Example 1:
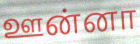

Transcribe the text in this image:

ஊன்னா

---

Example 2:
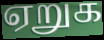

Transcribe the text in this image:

ஏறுக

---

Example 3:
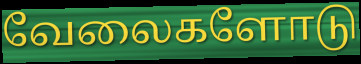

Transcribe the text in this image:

வேலைகளோடு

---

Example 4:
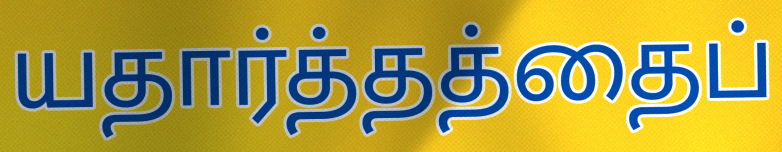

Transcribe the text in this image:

யதார்த்தத்தைப்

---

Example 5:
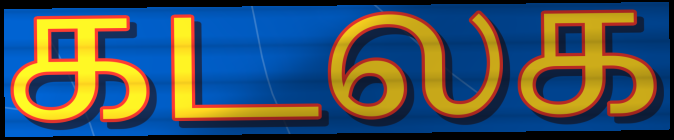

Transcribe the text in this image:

கடலக